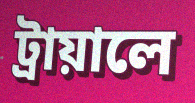
ট্রায়ালে